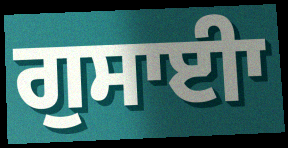
ਗੁਸਾਈਾ